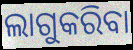
ଲାଗୁକରିବା